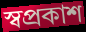
স্বপ্ৰকাশ